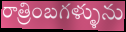
రాత్రింబగళ్ళును